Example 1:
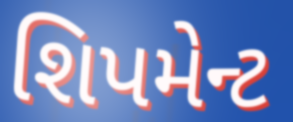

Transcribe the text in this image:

શિપમેન્ટ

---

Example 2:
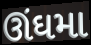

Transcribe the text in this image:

ઊંઘમા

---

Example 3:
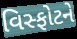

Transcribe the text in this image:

વિસ્ફોટને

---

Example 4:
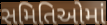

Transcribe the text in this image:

સમિતિઓમાં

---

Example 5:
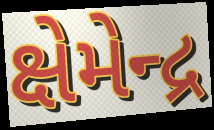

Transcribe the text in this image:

ક્ષેમેન્દ્ર